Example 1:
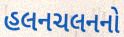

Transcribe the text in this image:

હલનચલનનો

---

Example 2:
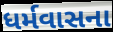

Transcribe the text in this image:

ધર્મવાસના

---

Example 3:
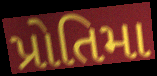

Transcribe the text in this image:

પ્રોતિમા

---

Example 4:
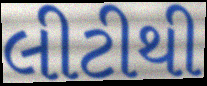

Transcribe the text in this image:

લીટીથી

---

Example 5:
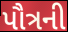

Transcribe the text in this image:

પૌત્રની